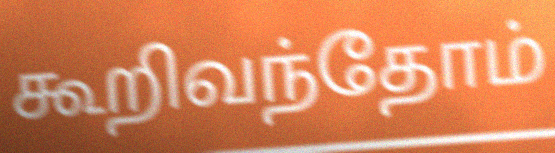
கூறிவந்தோம்